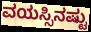
ವಯಸ್ಸಿನಷ್ಟು